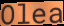
Olea